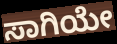
ಸಾಗಿಯೇ